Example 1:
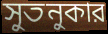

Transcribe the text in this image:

সুতনুকার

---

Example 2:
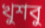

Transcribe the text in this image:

খুশবু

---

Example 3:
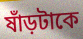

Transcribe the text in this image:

ষাঁড়টাকে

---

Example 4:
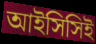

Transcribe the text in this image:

আইসিসিই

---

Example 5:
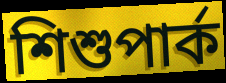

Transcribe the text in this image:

শিশুপার্ক